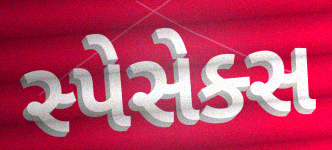
સ્પેસેક્સ